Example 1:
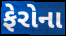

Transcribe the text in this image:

ફેરોના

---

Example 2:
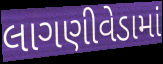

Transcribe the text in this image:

લાગણીવેડામાં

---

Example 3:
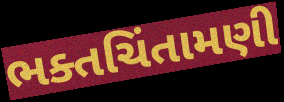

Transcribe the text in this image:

ભક્તચિંતામણી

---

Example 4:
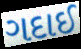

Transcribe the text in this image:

ગદાઈ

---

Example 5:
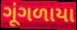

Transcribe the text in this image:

ગૂંગળાયા